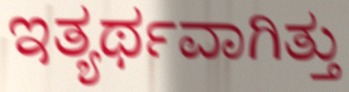
ಇತ್ಯರ್ಥವಾಗಿತ್ತು